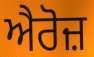
ਐਰੋਜ਼